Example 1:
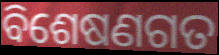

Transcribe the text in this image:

ବିଶେଷଣଗତ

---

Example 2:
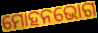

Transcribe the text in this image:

ମୋହନଭୋଗ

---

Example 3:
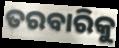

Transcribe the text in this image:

ତରବାରିକୁ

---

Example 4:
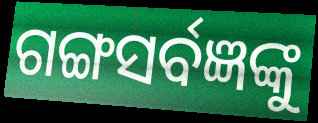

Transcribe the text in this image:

ଗଙ୍ଗସର୍ବଜ୍ଞଙ୍କୁ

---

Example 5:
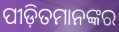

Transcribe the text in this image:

ପୀଡ଼ିତମାନଙ୍କର